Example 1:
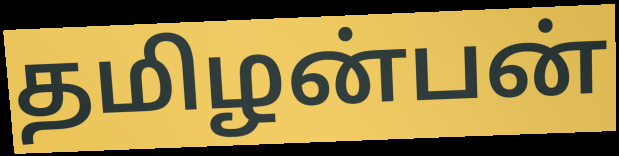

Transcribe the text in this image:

தமிழன்பன்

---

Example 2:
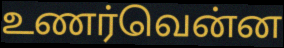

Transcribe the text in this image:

உணர்வென்ன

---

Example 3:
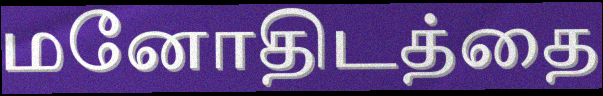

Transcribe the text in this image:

மனோதிடத்தை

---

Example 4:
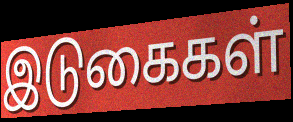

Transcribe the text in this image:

இடுகைகள்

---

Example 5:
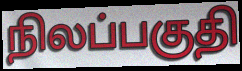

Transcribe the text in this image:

நிலப்பகுதி